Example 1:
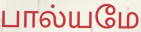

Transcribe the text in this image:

பால்யமே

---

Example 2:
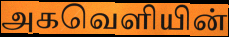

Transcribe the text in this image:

அகவெளியின்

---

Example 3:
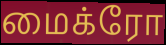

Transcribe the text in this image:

மைக்ரோ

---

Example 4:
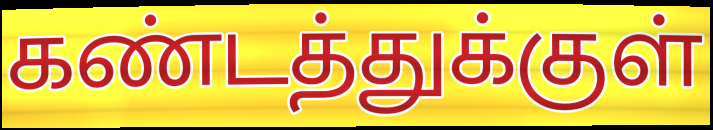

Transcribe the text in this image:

கண்டத்துக்குள்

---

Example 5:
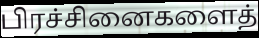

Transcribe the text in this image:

பிரச்சினைகளைத்